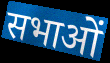
सभाओं